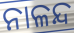
ନାଳନ୍ଦ